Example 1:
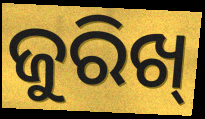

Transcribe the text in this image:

ଜୁରିଖ୍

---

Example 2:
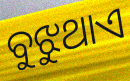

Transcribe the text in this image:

ବୁଝୁଥାଏ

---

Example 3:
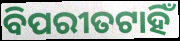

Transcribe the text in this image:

ବିପରୀତଟାହିଁ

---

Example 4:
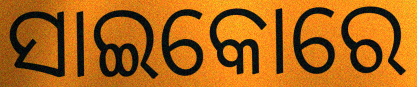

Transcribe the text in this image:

ସାଇକୋରେ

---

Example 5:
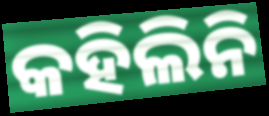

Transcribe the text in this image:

କହିଲିନି